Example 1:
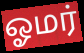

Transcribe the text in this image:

ஓமர்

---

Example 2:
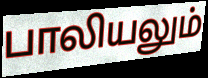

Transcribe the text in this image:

பாலியலும்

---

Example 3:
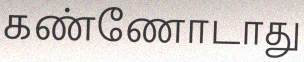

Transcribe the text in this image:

கண்ணோடாது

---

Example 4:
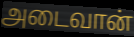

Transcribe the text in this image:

அடைவான்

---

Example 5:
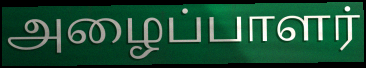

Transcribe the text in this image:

அழைப்பாளர்